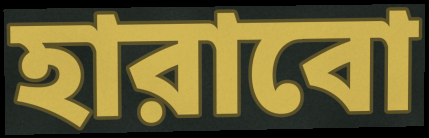
হারাবো